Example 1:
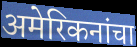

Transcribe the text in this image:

अमेरिकनांचा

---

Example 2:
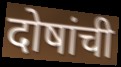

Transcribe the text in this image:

दोषांची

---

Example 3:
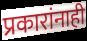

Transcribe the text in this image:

प्रकारांनाही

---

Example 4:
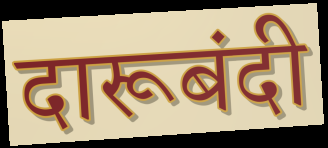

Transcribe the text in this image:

दारूबंदी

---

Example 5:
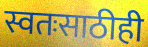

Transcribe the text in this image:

स्वतःसाठीही